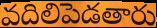
వదిలిపెడతారు